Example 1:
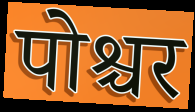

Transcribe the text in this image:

पोश्चर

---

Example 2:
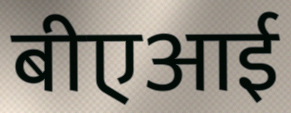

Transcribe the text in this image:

बीएआई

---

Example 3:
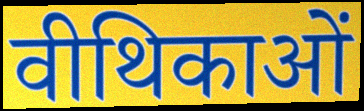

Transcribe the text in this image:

वीथिकाओं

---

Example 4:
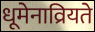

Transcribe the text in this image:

धूमेनाव्रियते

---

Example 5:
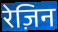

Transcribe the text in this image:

रेज़िन